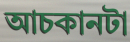
আচকানটা